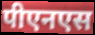
पीएनएस